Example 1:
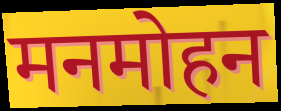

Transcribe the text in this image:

मनमोहन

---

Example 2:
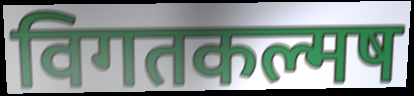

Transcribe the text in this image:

विगतकल्मष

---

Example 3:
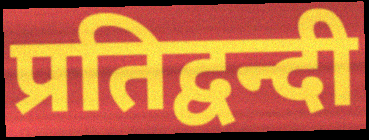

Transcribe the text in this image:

प्रतिद्वन्दी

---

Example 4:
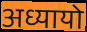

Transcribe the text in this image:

अध्यायो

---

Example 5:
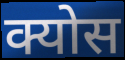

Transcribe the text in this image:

क्योस